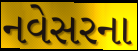
નવેસરના